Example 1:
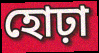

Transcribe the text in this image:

হোঢ়া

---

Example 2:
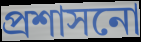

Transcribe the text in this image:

প্ৰশাসনো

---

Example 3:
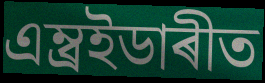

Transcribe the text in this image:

এম্ব্ৰইডাৰীত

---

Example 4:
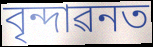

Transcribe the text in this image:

বৃন্দাৱনত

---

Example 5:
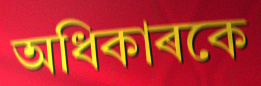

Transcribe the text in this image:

অধিকাৰকে